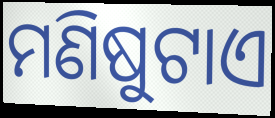
ମଣିଷୁଟାଏ